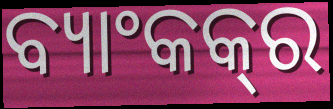
ବ୍ୟାଂକକ୍‍ର